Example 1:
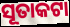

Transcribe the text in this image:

ସୂତାକଟା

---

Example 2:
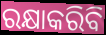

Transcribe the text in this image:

ରକ୍ଷାକରିବି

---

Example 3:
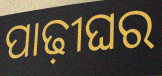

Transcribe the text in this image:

ପାଢ଼ୀଘର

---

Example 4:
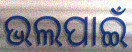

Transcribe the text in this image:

ଭଲପାଇଁ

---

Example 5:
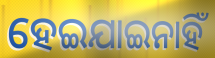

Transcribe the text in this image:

ହେଇଯାଇନାହିଁ